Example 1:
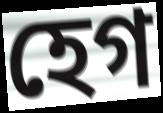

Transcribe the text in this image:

হেগ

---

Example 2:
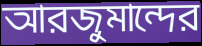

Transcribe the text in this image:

আরজুমান্দের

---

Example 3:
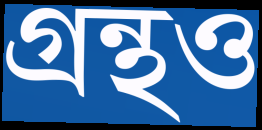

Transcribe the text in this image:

গ্রন্থও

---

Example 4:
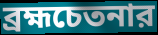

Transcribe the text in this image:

ব্রহ্মচেতনার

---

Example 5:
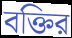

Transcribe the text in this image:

বক্তির